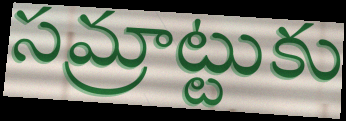
సమ్రాట్టుకు